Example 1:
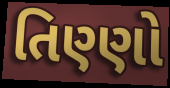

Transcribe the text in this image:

તિણ્ણો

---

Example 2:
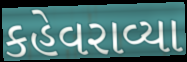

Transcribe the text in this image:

કહેવરાવ્યા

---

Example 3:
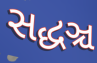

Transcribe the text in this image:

સદ્ધઞ્ચ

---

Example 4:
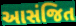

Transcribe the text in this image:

આસંજિત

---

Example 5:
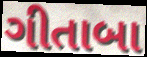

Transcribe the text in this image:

ગીતાબા